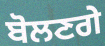
ਬੋਲਣਗੇ